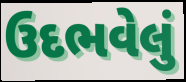
ઉદભવેલું